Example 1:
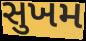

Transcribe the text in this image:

સુખમ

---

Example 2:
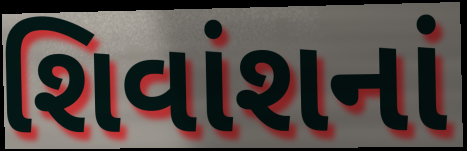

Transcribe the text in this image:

શિવાંશનાં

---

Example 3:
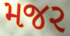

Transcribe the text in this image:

મજર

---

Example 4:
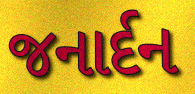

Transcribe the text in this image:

જનાર્દન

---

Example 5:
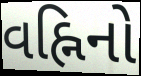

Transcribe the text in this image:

વહ્નિનો